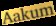
Aakum